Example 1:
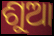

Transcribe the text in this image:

ଶୁଆ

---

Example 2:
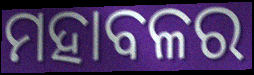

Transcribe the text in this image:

ମହାବଳର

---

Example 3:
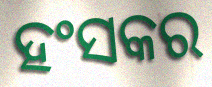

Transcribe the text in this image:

ହଂସକର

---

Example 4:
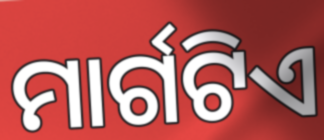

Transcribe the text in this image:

ମାର୍ଗଟିଏ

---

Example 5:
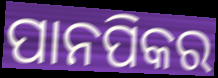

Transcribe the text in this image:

ପାନପିକର